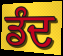
ਡੰਦ